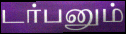
டர்பனும்